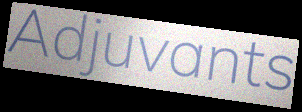
Adjuvants